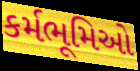
કર્મભૂમિઓ